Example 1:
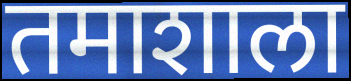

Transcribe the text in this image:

तमाशाला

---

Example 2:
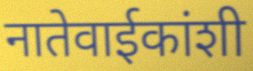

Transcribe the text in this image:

नातेवाईकांशी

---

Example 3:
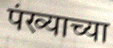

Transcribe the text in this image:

पंख्याच्या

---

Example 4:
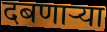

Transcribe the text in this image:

दबणाऱ्या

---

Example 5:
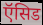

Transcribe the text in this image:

ऍसिड